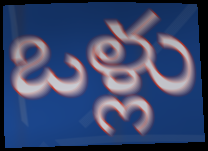
ఒళ్లు